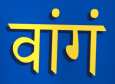
वांगं